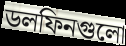
ডলফিনগুলো